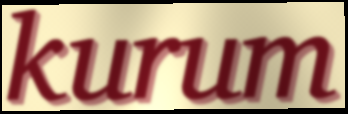
kurum